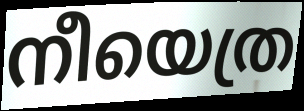
നീയെത്ര